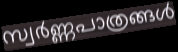
സ്വർണ്ണപാത്രങ്ങൾ